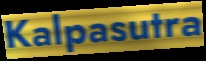
Kalpasutra